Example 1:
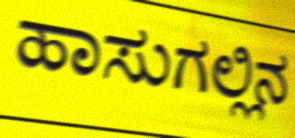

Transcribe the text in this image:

ಹಾಸುಗಲ್ಲಿನ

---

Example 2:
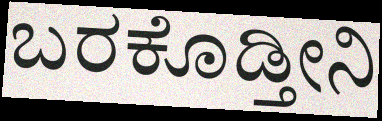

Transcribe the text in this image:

ಬರಕೊಡ್ತೀನಿ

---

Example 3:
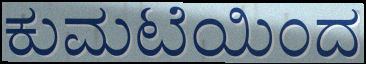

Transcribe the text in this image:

ಕುಮಟೆಯಿಂದ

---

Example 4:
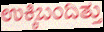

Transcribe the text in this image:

ಉಕ್ಕಿಬಂದಿತ್ತು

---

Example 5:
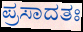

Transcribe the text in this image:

ಪ್ರಸಾದತಃ